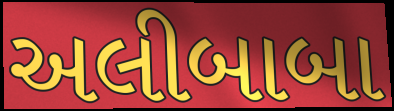
અલીબાબા